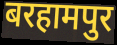
बरहामपुर